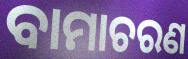
ବାମାଚରଣ